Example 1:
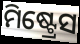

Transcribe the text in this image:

ମିଷ୍ଟ୍ରେସ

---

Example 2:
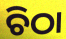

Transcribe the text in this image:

ଚିଠା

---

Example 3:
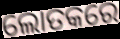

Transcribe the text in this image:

ଲୋତକରେ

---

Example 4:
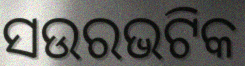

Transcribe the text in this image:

ସଉରଭଟିକ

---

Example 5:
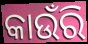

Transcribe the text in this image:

କାଉଁରି